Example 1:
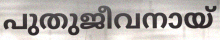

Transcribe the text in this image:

പുതുജീവനായ്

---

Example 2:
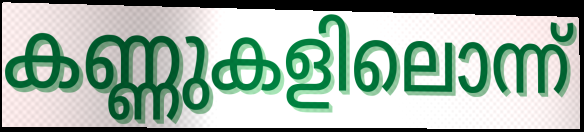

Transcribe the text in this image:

കണ്ണുകളിലൊന്ന്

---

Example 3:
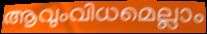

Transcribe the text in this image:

ആവുംവിധമെല്ലാം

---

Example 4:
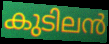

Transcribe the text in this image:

കുടിലൻ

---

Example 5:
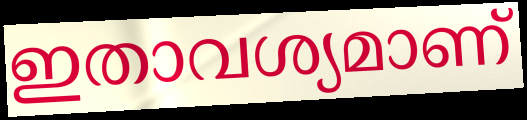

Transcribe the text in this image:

ഇതാവശ്യമാണ്